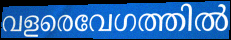
വളരെവേഗത്തിൽ